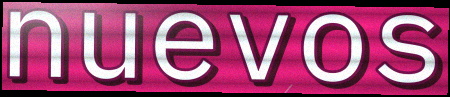
nuevos